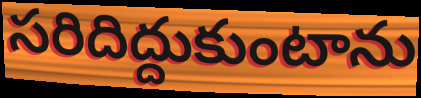
సరిదిద్దుకుంటాను